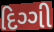
દિગ્ગી